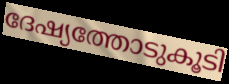
ദേഷ്യത്തോടുകൂടി